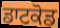
ਡਾਟਕੋਡ